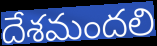
దేశమందలి